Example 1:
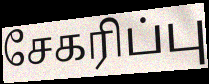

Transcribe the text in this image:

சேகரிப்பு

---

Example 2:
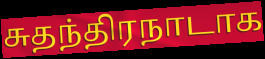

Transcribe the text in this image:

சுதந்திரநாடாக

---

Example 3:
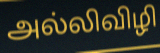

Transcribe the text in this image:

அல்லிவிழி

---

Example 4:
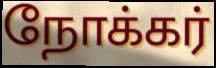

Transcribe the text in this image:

நோக்கர்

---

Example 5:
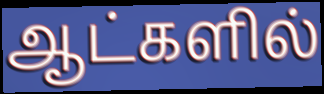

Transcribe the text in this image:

ஆட்களில்